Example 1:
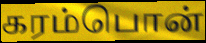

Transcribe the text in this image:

கரம்பொன்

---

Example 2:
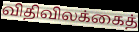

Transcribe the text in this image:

விதிவிலக்கைத்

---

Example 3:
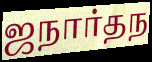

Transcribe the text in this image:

ஜநார்தந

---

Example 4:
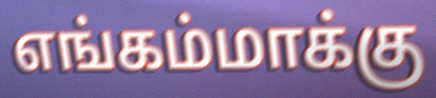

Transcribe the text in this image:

எங்கம்மாக்கு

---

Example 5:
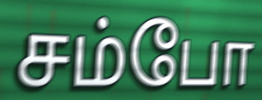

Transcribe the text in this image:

சம்போ